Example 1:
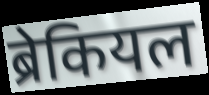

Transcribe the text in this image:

ब्रेकियल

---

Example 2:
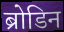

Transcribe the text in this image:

ब्रोडिन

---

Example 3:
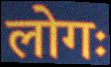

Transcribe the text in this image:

लोगः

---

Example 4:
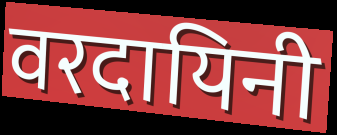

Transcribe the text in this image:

वरदायिनी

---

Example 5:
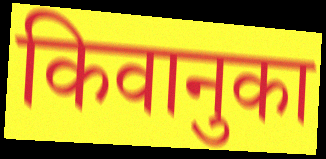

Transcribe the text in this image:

किवानुका